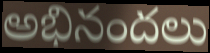
అభినందలు